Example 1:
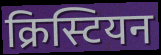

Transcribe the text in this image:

क्रिस्टियन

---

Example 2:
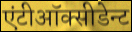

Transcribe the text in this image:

एंटीऑक्सीडेन्ट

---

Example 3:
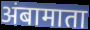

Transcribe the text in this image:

अंबामाता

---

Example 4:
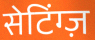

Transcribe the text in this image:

सेटिंग्ज़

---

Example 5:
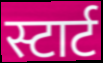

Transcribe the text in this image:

स्टार्ट